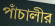
পাঁচালীর